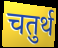
चतुर्थ